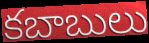
కబాబులు